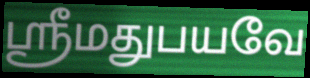
ஸ்ரீமதுபயவே